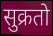
सुक्रतो